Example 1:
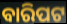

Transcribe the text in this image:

ବାରିପଟ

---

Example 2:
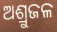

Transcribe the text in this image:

ଅଶ୍ରୁଜଳ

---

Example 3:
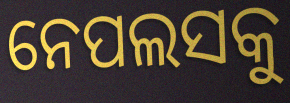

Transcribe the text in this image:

ନେପଲସକୁ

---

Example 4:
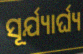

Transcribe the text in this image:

ସୂର୍ଯ୍ୟାର୍ଘ୍ୟ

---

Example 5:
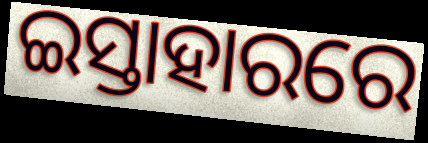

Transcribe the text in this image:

ଇସ୍ତାହାରରେ